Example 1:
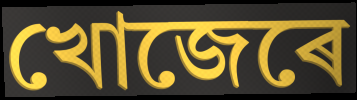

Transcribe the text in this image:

খোজেৰে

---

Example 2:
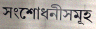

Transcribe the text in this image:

সংশোধনীসমূহ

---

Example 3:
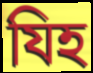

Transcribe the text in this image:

যিহ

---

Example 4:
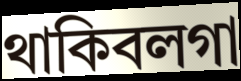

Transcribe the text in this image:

থাকিবলগা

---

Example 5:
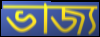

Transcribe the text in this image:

ভাজ্য